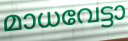
മാധവേട്ടാ